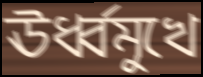
ঊর্ধ্বমুখে